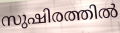
സുഷിരത്തിൽ